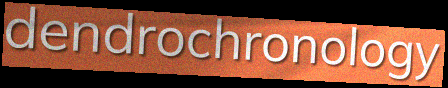
dendrochronology